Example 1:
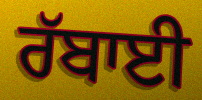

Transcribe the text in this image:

ਰੱਬਾਈ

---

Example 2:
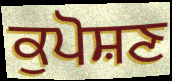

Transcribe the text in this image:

ਕੁਪੋਸ਼ਣ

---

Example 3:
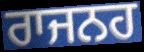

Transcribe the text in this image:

ਰਾਜਨਹ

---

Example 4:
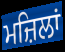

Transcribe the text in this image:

ਮਜ਼ਿਲਾਂ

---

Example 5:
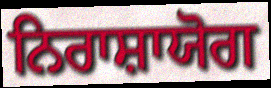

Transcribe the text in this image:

ਨਿਰਾਸ਼ਾਯੋਗ